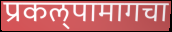
प्रकल्पामागचा